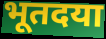
भूतदया